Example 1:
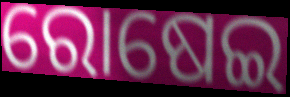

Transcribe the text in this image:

ରୋଷେଇ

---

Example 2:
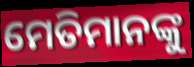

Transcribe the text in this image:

ମେତିମାନଙ୍କୁ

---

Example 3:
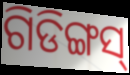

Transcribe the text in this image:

ଗିଡିଙ୍ଗସ୍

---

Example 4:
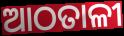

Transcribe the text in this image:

ଆଠତାଳୀ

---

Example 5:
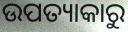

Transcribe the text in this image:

ଉପତ୍ୟାକାରୁ